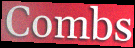
Combs